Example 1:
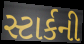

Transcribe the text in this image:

સ્ટાર્કની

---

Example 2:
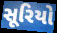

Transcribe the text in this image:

સૂરિયો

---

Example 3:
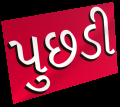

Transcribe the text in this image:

પુછડી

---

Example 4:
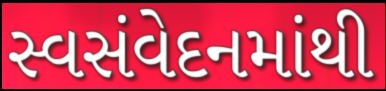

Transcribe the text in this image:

સ્વસંવેદનમાંથી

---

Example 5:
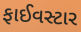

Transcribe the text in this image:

ફાઈવસ્ટાર